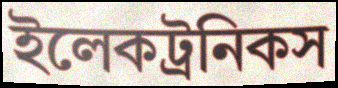
ইলেকট্রনিকস